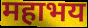
महाभय